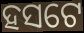
ହସଟେ